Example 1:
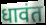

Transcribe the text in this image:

धावंत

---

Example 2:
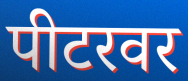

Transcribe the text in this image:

पीटरवर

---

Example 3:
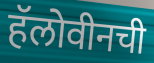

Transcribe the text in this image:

हॅलोवीनची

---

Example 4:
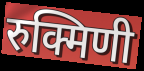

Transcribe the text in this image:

रुक्मिणी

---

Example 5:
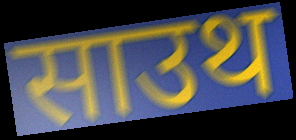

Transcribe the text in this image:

साउथ